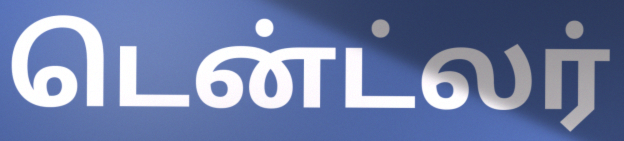
டென்ட்லர்